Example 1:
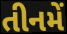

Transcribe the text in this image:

તીનમેં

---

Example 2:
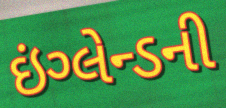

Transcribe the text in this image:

ઇંગ્લેન્ડની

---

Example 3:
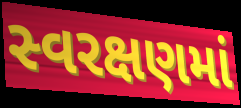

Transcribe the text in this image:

સ્વરક્ષણમાં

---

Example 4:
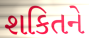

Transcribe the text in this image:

શકિતને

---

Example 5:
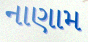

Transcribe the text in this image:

નાણામ